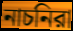
নাচনিরা